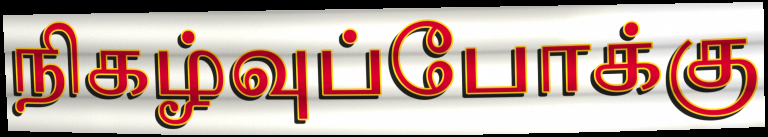
நிகழ்வுப்போக்கு